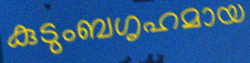
കുടുംബഗൃഹമായ